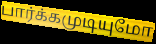
பார்க்கமுடியுமோ